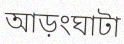
আড়ংঘাটা